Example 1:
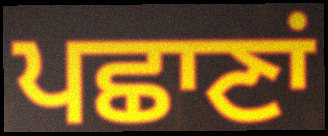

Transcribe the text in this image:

ਪਛਾਣਾਂ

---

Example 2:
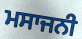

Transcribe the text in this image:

ਮਸਾਜਨੀ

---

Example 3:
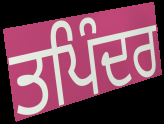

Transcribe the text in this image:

ਤਪਿੰਦਰ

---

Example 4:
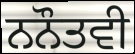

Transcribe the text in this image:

ਨਨੌਤਵੀ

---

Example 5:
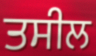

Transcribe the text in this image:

ਤਸੀਲ